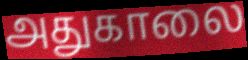
அதுகாலை